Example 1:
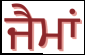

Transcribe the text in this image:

ਜੈਮਾਂ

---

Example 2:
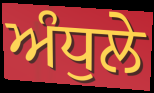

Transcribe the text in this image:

ਅੰਧੁਲੇ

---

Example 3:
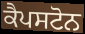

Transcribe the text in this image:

ਕੈਪਸਟੋਨ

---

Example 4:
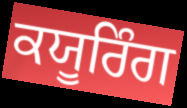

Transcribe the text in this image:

ਕਯੂਰਿੰਗ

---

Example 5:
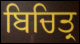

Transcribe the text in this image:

ਬਿਚਿਤ੍ਰ